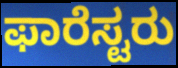
ಫಾರೆಸ್ಟರು